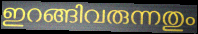
ഇറങ്ങിവരുന്നതും